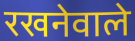
रखनेवाले